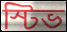
স্টিভ